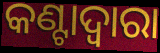
କଣ୍ଟାଦ୍ୱାରା